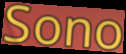
Sono